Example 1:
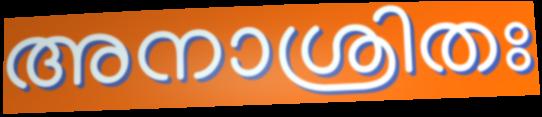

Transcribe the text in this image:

അനാശ്രിതഃ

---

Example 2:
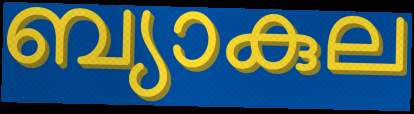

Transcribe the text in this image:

ബ്യാകുല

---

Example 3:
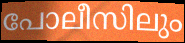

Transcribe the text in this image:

പോലീസിലും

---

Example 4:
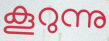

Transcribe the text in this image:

കൂറുന്നു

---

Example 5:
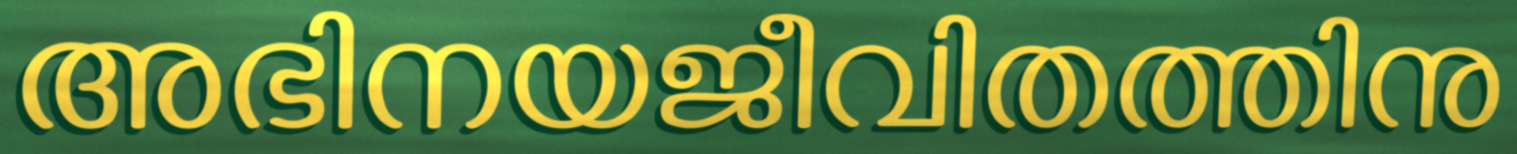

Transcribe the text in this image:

അഭിനയജീവിതത്തിനു